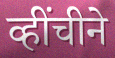
व्हींचीने